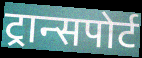
ट्रान्सपोर्ट